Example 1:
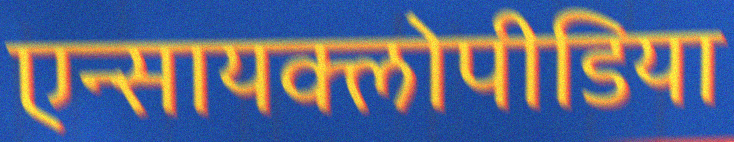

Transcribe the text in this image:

एन्सायक्लोपीडिया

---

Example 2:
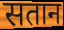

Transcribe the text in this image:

सतान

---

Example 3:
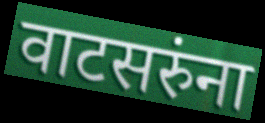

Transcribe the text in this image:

वाटसरुंना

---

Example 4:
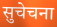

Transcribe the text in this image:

सुचेचना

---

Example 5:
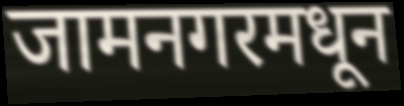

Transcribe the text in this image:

जामनगरमधून